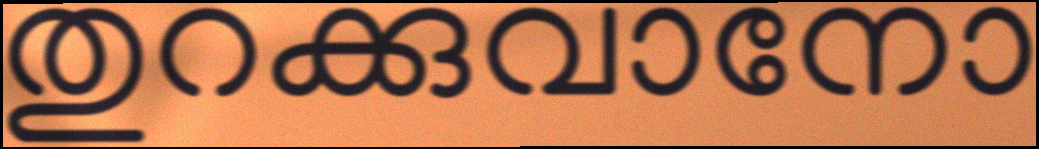
തുറക്കുവാനോ